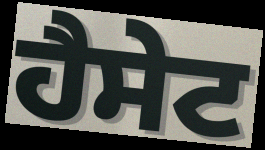
ਹੈਸੇਟ